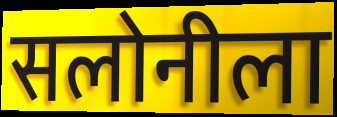
सलोनीला